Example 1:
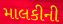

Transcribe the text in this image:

માલકીની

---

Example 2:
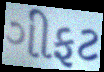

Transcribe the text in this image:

ગીફટ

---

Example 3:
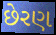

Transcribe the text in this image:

છેરણ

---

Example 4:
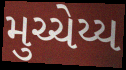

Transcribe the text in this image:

મુચ્ચેય્ય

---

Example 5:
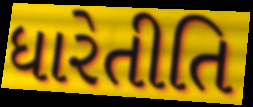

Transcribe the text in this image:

ધારેતીતિ